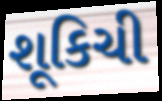
શૂકિચી